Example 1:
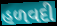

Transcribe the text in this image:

હળવદી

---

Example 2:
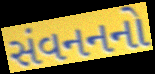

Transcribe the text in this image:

સંવનનનો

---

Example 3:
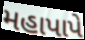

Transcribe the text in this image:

મહાપાપે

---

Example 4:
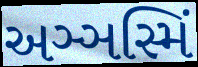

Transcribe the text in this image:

અઞ્ઞસ્મિં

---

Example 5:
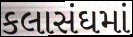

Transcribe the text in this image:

કલાસંઘમાં